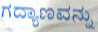
ಗದ್ಯಾಣವನ್ನು